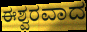
ಈಶ್ವರವಾದ